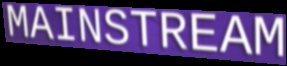
MAINSTREAM